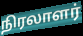
நிரலாளர்